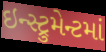
ઇન્સ્ટ્રુમેન્ટમાં